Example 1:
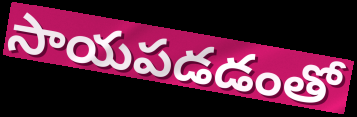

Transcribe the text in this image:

సాయపడడంతో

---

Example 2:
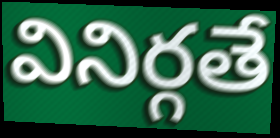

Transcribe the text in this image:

వినిర్గతే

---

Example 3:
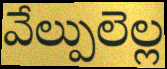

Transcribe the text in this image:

వేల్పులెల్ల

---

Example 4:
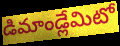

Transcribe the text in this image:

డిమాండ్లేమిటో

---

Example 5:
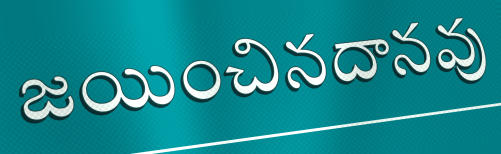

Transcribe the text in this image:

జయించినదానవు